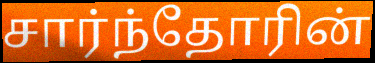
சார்ந்தோரின்